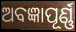
ଅବଜ୍ଞାପୂର୍ଣ୍ଣ